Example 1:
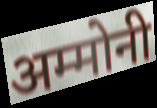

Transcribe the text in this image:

अम्मोनी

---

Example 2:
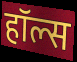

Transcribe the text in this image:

हॉल्स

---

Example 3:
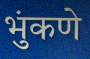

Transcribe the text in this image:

भुंकणे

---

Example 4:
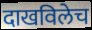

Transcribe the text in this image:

दाखविलेच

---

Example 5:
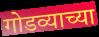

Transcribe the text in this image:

गोडव्याच्या